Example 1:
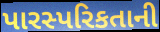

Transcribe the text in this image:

પારસ્પરિકતાની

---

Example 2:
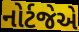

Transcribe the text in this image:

નોર્ટજેએ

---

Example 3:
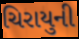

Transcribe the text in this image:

ચિરાયુની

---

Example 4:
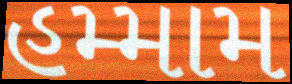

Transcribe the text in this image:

હમ્મામ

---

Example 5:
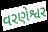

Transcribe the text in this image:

વરણેશ્વર